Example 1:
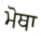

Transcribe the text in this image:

ਮੋਥਾ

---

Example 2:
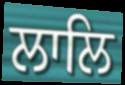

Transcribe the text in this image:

ਲਾਲਿ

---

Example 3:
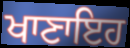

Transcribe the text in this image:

ਖਾਣਾਇਹ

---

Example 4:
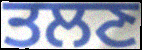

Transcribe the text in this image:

ਤਲਣ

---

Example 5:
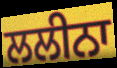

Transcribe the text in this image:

ਲਲੀਨਾ